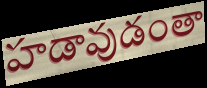
హడావుడంతా